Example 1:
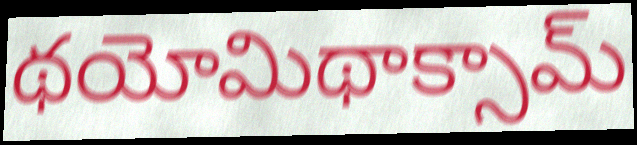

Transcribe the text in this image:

థయోమిథాక్సామ్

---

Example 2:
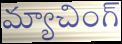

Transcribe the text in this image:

మ్యాచింగ్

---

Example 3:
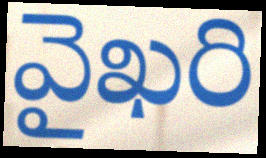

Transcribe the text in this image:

వైఖరి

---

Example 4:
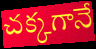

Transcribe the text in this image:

చక్కగానే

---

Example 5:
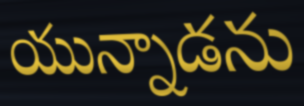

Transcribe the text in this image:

యున్నాడను